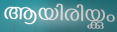
ആയിരിയ്ക്കും